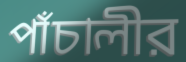
পাঁচালীর